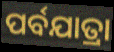
ପର୍ବଯାତ୍ରା